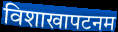
विशाखापटनम